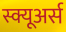
स्क्यूअर्स